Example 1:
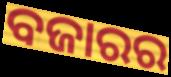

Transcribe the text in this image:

ବଜାରର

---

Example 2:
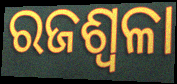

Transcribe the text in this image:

ରଜଶ୍ୱଳା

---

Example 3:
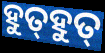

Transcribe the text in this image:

ହୁତ୍‍ହୁତ୍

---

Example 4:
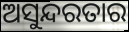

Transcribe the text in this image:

ଅସୁନ୍ଦରତାର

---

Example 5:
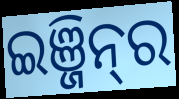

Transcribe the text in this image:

ଇଞ୍ଜିନ୍‌ର